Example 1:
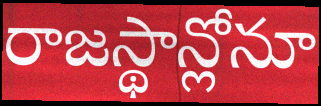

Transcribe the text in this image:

రాజస్థాన్లోనూ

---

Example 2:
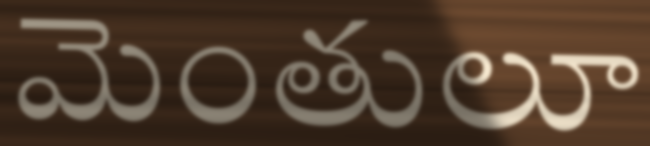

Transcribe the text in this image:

మెంతులూ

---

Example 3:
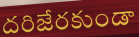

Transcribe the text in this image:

దరిజేరకుండా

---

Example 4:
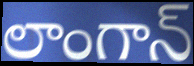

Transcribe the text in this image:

లాంగాన్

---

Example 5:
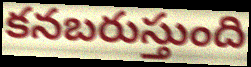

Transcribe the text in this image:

కనబరుస్తుంది